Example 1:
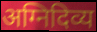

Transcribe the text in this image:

अग्निदिव्य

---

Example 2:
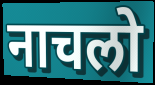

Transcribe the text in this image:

नाचलो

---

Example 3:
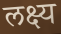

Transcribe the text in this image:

लक्ष्य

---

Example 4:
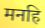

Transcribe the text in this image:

मनहि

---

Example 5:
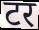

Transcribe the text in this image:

टर